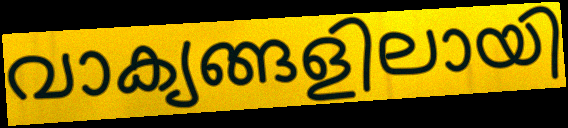
വാക്യങ്ങളിലായി